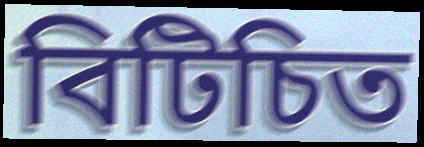
বিটিচিত